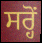
ਸਰ੍ਹੋਂ